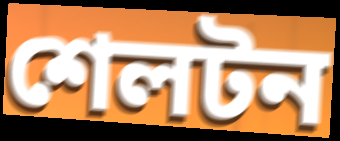
শেলটন